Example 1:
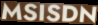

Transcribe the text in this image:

MSISDN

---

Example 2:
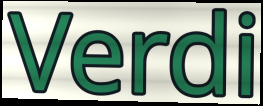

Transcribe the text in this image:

Verdi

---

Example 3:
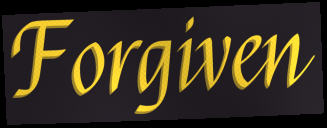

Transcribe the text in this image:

Forgiven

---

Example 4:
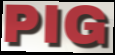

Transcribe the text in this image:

PIG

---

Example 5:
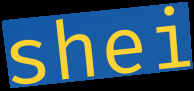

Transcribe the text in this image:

shei